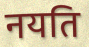
नयति